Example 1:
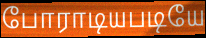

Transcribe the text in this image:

போராடியபடியே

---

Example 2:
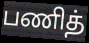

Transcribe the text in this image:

பணித்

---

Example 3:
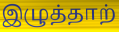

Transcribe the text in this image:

இழுத்தாற்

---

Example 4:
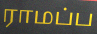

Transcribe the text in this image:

ராமப்ப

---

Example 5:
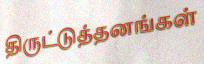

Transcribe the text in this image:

திருட்டுத்தனங்கள்